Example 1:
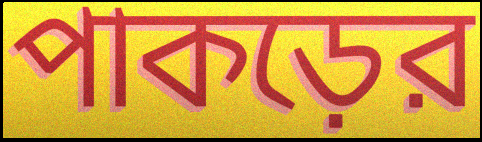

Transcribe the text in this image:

পাকড়ের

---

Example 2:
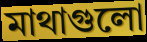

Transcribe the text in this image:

মাথাগুলো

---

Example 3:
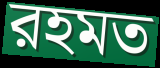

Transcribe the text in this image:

রহমত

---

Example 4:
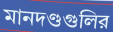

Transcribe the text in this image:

মানদণ্ডগুলির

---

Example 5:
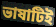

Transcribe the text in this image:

ভাষাটিই